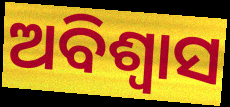
ଅବିଶ୍ବାସ